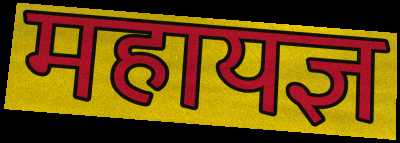
महायज्ञ